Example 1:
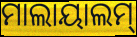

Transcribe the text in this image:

ମାଲାୟାଲମ୍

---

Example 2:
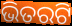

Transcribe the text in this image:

ଭିତରଟି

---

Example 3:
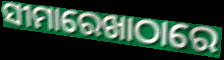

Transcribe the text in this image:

ସୀମାରେଖାଠାରେ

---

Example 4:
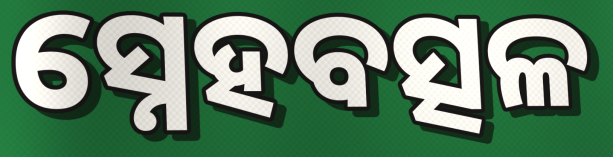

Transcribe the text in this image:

ସ୍ନେହବତ୍ସଳ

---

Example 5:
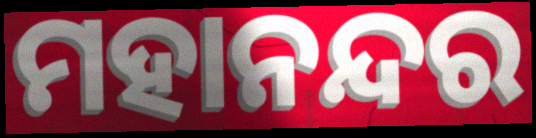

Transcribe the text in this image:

ମହାନନ୍ଦର